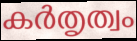
കർതൃത്വം